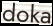
doka